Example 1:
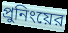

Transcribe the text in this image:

প্রুনিংয়ের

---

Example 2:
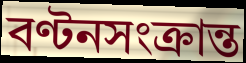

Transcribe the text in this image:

বণ্টনসংক্রান্ত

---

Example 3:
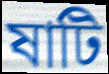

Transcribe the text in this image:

ষাটি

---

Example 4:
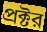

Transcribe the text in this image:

প্রক্টর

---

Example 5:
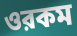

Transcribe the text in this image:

ওরকম